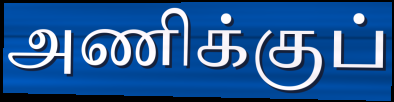
அணிக்குப்